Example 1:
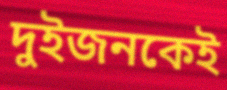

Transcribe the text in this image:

দুইজনকেই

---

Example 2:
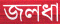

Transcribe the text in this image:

জলধা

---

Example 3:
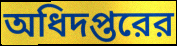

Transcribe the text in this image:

অধিদপ্তরের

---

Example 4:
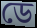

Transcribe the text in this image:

ডে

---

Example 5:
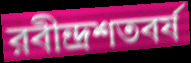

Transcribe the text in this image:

রবীন্দ্রশতবর্ষ